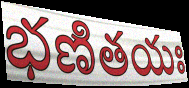
భణితయః